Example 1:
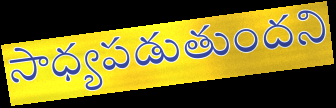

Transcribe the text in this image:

సాధ్యపడుతుందని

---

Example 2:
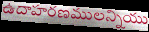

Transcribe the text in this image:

ఉదాహరణములన్నియు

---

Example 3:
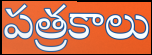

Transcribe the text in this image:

పత్రకాలు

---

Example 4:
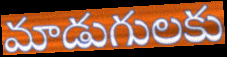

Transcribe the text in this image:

మాడుగులకు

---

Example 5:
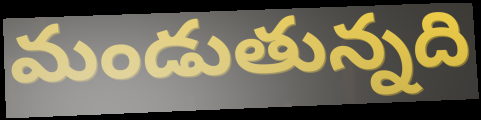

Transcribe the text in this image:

మండుతున్నది